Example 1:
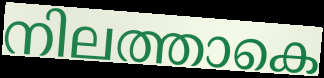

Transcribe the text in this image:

നിലത്താകെ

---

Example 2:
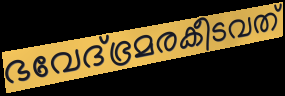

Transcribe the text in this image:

ഭവേദ്ഭ്രമരകീടവത്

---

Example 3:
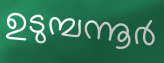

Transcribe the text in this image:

ഉടുമ്പന്നൂർ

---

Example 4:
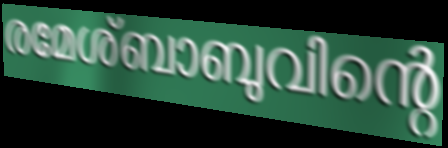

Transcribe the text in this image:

രമേശ്ബാബുവിന്റെ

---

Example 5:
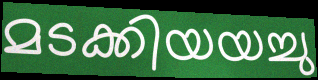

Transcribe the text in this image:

മടക്കിയയച്ചു